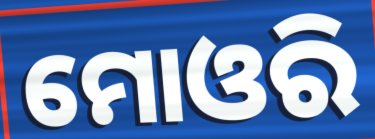
ମୋଓରି